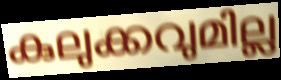
കുലുക്കവുമില്ല